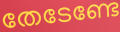
തേടേണ്ടേ